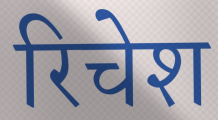
रिचेश